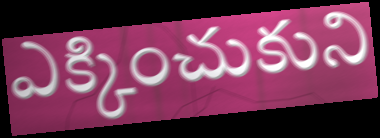
ఎక్కించుకుని